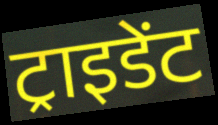
ट्राइडेंट